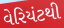
વેરિયંટથી